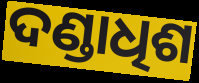
ଦଣ୍ଡାଧିଶ